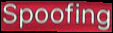
Spoofing